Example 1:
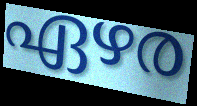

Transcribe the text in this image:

ഏഴര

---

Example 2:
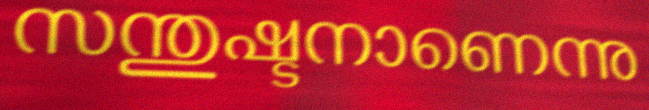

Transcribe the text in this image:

സന്തുഷ്ടനാണെന്നു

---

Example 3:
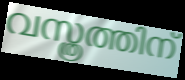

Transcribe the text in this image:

വസ്ത്രത്തിന്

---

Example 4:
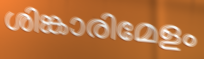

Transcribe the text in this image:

ശിങ്കാരിമേളം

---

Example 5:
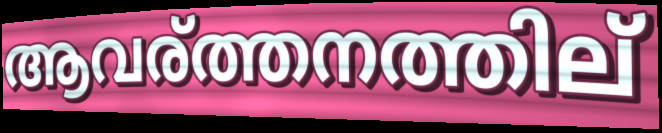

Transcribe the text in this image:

ആവര്ത്തനത്തില്